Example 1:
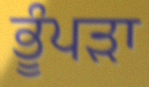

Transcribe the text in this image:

ਭੂੰਪੜਾ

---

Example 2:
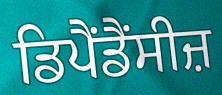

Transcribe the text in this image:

ਡਿਪੈਂਡੈਂਸੀਜ਼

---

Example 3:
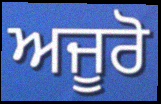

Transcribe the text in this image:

ਅਜੂਰੋ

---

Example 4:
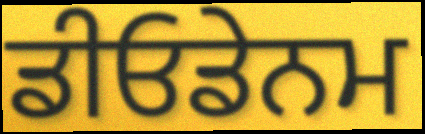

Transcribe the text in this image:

ਡੀਓਡੇਨਮ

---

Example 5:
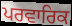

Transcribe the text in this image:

ਪਰਵਾਰਿਕ